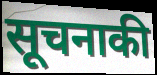
सूचनाकी